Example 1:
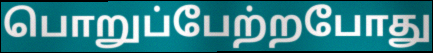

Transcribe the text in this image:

பொறுப்பேற்றபோது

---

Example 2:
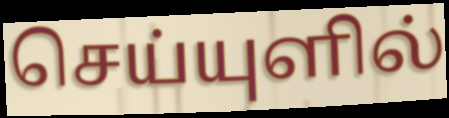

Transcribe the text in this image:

செய்யுளில்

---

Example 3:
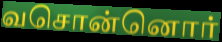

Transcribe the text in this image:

வசொன்னொர்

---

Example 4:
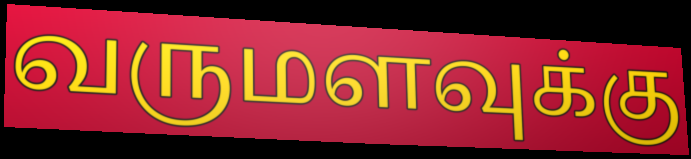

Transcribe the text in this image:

வருமளவுக்கு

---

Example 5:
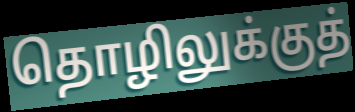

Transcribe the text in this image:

தொழிலுக்குத்